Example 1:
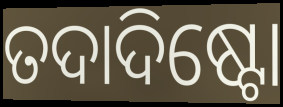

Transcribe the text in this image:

ତଦାଦିଷ୍ଟୋ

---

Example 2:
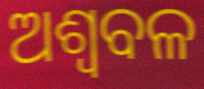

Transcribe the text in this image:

ଅଶ୍ୱବଳ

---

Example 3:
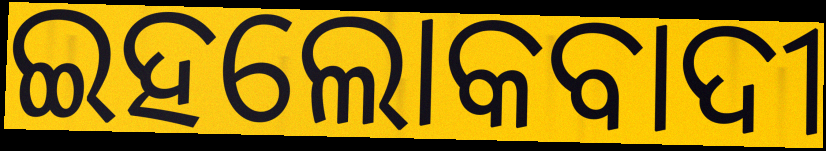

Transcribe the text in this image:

ଇହଲୋକବାଦୀ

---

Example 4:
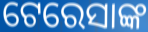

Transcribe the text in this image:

ଟେରେସାଙ୍କ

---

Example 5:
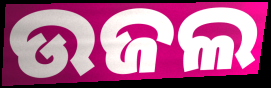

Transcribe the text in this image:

ଉଜଲ